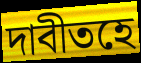
দাবীতহে